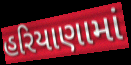
હરિયાણામાં